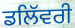
ਡਲਿੱਵਰੀ